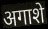
अगाशे